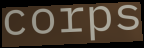
corps